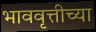
भाववृत्तीच्या